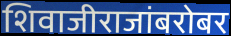
शिवाजीराजांबरोबर